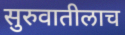
सुरुवातीलाच